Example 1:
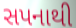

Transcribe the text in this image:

સપનાથી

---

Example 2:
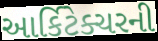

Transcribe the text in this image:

આર્કિટેક્ચરની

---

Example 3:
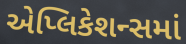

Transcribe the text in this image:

એપ્લિકેશન્સમાં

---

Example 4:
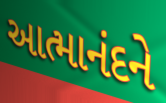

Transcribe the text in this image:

આત્માનંદને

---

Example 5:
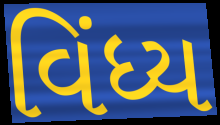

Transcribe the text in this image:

વિંધ્ય